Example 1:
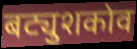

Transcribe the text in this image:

बट्युशकोव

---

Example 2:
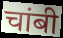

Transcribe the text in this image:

चांबी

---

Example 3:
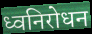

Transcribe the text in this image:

ध्वनिरोधन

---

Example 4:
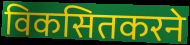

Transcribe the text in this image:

विकसितकरने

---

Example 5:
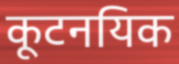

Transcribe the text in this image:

कूटनयिक